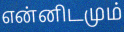
என்னிடமும்